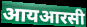
आयआरसी